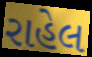
રાહેલ